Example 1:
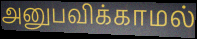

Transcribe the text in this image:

அனுபவிக்காமல்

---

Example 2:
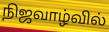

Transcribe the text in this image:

நிஜவாழ்வில்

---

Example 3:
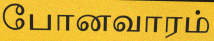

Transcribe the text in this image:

போனவாரம்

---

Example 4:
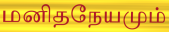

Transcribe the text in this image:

மனிதநேயமும்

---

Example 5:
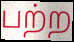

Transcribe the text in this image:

பற்ற